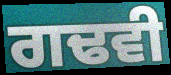
ਗਢਵੀ